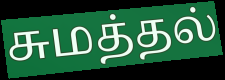
சுமத்தல்